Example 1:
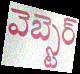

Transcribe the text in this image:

వెబ్స్టెర్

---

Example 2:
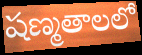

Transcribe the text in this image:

షణ్మతాలలో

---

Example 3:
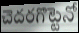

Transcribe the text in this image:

చెదరగొట్టెనో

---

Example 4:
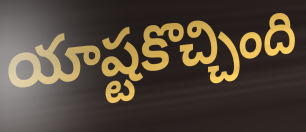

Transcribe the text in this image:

యాష్టకొచ్చింది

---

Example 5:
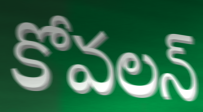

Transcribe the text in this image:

కోవలన్